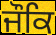
ਜੌਕਿ